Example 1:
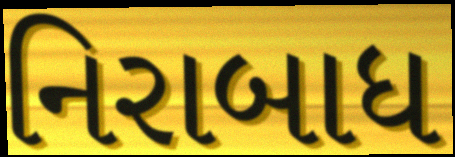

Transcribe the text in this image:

નિરાબાધ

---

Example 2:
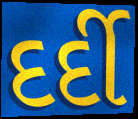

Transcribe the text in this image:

દર્દી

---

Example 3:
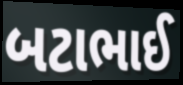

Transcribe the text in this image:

બટાભાઈ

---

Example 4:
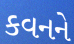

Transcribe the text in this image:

કવનને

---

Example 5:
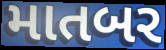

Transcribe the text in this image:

માતબર